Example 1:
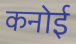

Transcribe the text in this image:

कनोई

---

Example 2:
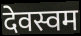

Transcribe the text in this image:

देवस्वम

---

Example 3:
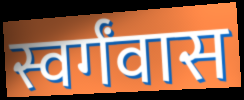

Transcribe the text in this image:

स्वर्गंवास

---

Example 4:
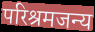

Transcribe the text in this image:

परिश्रमजन्य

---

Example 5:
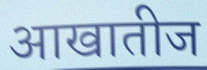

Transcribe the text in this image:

आखातीज